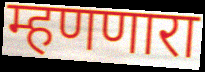
म्हणणारा